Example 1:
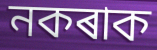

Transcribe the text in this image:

নকৰাক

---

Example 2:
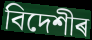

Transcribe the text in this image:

বিদেশীৰ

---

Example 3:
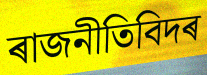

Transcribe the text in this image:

ৰাজনীতিবিদৰ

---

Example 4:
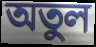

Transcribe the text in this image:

অতুল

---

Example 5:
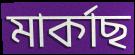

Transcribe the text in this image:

মাৰ্কাছ